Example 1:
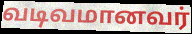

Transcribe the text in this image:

வடிவமானவர்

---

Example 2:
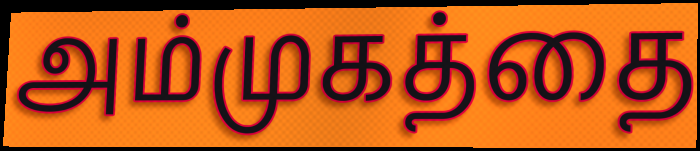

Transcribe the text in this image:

அம்முகத்தை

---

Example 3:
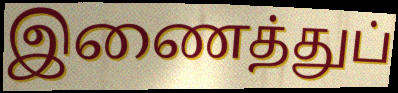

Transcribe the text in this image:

இணைத்துப்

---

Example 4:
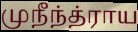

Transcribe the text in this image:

முநீந்த்ராய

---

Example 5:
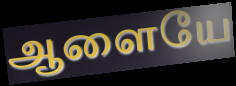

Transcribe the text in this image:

ஆளையே